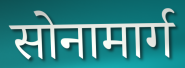
सोनामार्ग